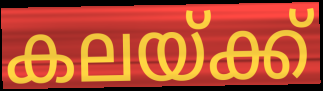
കലയ്ക്ക്